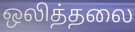
ஒலித்தலை